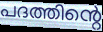
പദത്തിന്റെ